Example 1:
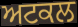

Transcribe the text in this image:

ਅਟਕਲ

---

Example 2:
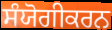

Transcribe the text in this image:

ਸੰਯੋਗੀਕਰਨ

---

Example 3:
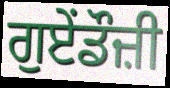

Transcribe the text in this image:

ਗੁਏਂਡੌਜ਼ੀ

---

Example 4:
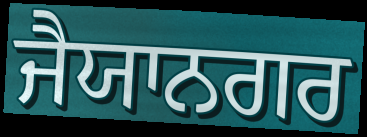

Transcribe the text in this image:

ਜੈਯਾਨਗਰ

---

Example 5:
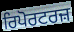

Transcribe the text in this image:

ਰਿਪੋਰਟਰਜ਼